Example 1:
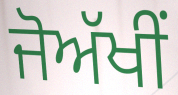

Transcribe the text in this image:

ਜੋਅੱਖੀਂ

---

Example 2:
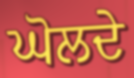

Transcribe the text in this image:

ਘੋਲਦੇ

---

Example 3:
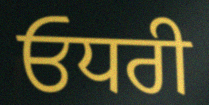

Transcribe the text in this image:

ਓਧਰੀ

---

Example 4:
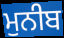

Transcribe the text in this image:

ਮੁਨੀਬ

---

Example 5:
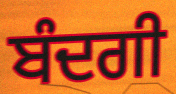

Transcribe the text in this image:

ਬੰਦਗੀ